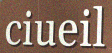
ciueil